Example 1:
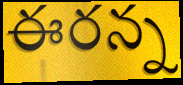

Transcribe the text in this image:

ఈరన్న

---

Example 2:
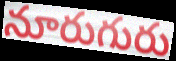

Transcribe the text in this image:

నూరుగురు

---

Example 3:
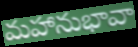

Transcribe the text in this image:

మహానుభావా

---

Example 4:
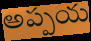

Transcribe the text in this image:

అప్పయ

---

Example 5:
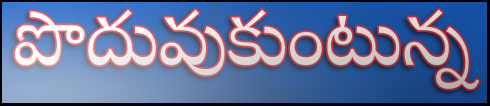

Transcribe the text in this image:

పొదువుకుంటున్న